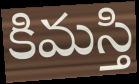
కిమస్తి